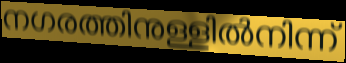
നഗരത്തിനുള്ളിൽനിന്ന്